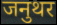
जनुथर